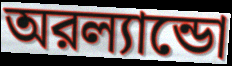
অরল্যান্ডো